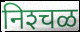
निश्‍चळ